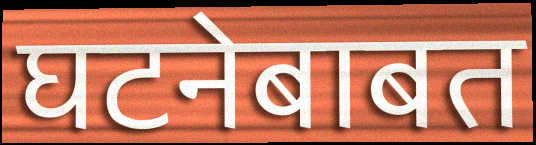
घटनेबाबत